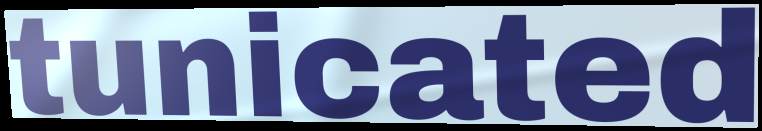
tunicated